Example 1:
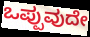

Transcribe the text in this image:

ಒಪ್ಪುವುದೇ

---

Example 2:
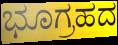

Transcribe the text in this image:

ಭೂಗ್ರಹದ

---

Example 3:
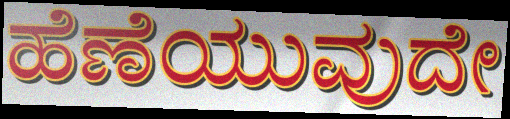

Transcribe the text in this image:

ಹೆಣೆಯುವುದೇ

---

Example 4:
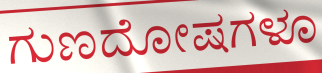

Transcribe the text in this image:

ಗುಣದೋಷಗಳೂ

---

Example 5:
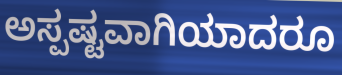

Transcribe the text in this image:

ಅಸ್ಪಷ್ಟವಾಗಿಯಾದರೂ